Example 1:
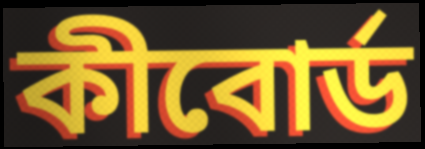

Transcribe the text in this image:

কীবোর্ড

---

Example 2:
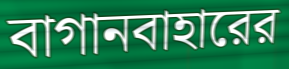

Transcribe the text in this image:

বাগানবাহারের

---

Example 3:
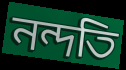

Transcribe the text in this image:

নন্দতি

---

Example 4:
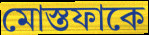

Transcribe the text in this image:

মোস্তফাকে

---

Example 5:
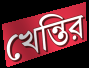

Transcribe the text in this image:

খেন্তির